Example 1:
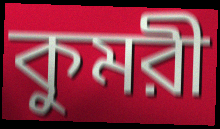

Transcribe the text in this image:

কুমরী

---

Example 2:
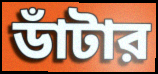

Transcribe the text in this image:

ডাঁটার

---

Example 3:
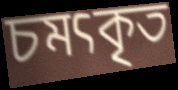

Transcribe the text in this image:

চমৎকৃত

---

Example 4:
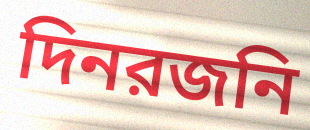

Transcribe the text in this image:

দিনরজনি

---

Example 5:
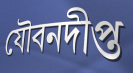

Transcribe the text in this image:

যৌবনদীপ্ত